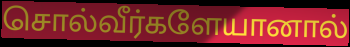
சொல்வீர்களேயானால்